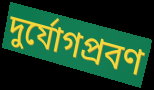
দুর্যোগপ্রবণ